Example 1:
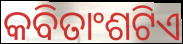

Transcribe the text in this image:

କବିତାଂଶଟିଏ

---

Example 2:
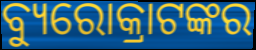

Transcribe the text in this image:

ବ୍ୟୁରୋକ୍ରାଟଙ୍କର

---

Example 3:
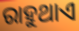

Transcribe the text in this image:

ରାହୁଥାଏ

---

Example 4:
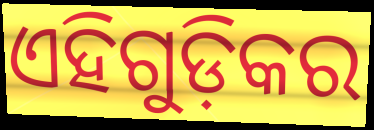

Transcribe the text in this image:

ଏହିଗୁଡ଼ିକର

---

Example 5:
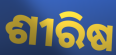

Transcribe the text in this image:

ଶୀରିଷ